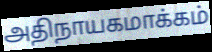
அதிநாயகமாக்கம்